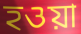
হওয়া